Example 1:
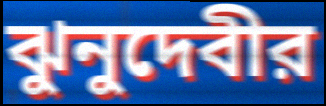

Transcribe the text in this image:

ঝুনুদেবীর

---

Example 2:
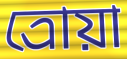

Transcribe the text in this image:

ত্রোয়া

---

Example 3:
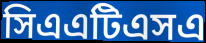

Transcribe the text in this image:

সিএএটিএসএ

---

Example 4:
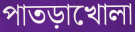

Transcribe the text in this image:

পাতড়াখোলা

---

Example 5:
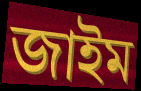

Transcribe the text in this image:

জাইম